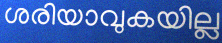
ശരിയാവുകയില്ല